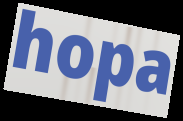
hopa